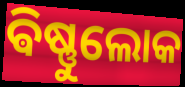
ଵିଷ୍ଣୁଲୋକ